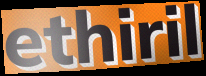
ethiril